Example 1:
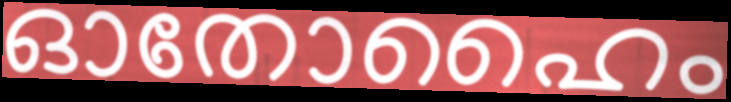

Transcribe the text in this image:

ഓതോഹൈം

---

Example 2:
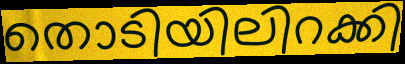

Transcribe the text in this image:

തൊടിയിലിറക്കി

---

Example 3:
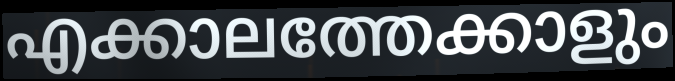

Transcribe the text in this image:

എക്കാലത്തേക്കാളും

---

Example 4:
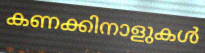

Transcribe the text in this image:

കണക്കിനാളുകൾ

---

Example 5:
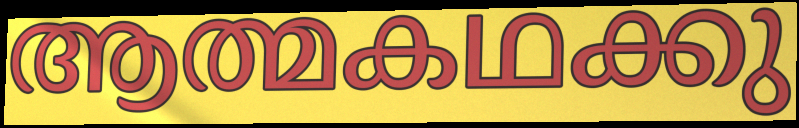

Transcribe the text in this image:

ആത്മകഥക്കു